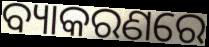
ବ୍ୟାକରଣରେ